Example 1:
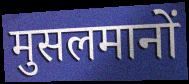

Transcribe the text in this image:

मुसलमानों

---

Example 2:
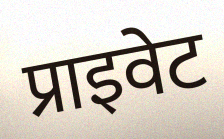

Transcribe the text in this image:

प्राइवेट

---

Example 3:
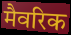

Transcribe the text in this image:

मैवरिक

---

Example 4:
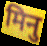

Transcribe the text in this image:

मिनु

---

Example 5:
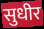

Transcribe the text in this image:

सुधीर